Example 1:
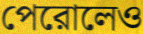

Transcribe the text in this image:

পেরোলেও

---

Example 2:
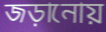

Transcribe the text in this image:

জড়ানোয়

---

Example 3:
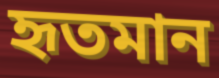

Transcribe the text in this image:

হৃতমান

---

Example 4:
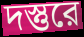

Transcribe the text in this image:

দস্তুরে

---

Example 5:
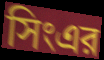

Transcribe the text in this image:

সিংএর